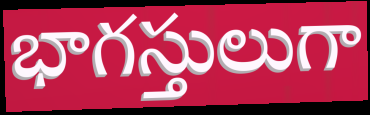
భాగస్తులుగా